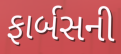
ફાર્બસની